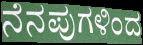
ನೆನಪುಗಳಿಂದ